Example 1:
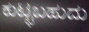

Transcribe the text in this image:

ಕುಟ್ಟಬಹುದು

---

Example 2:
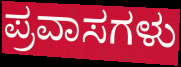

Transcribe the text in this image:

ಪ್ರವಾಸಗಳು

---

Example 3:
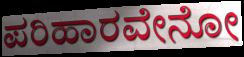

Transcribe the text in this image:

ಪರಿಹಾರವೇನೋ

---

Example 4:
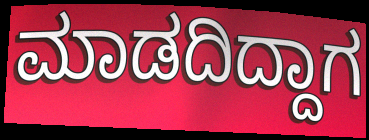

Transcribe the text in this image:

ಮಾಡದಿದ್ದಾಗ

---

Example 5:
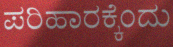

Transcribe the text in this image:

ಪರಿಹಾರಕ್ಕೆಂದು